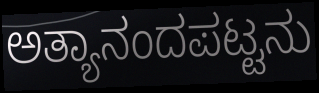
ಅತ್ಯಾನಂದಪಟ್ಟನು